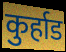
कुर्हाड